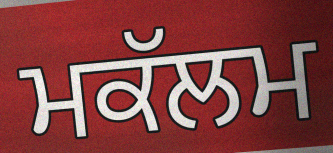
ਮਕੱਲਮ